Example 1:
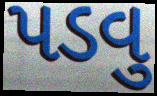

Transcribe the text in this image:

પડવુ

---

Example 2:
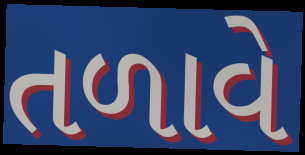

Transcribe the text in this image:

તળાવે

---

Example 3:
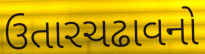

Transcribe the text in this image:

ઉતારચઢાવનો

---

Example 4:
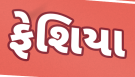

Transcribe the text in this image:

ફેશિયા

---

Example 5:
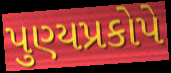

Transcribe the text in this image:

પુણ્યપ્રકોપે